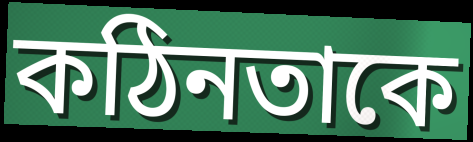
কঠিনতাকে